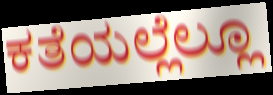
ಕತೆಯಲ್ಲೆಲ್ಲೂ